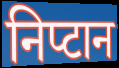
निप्टान